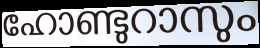
ഹോണ്ടുറാസും